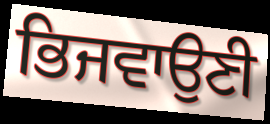
ਭਿਜਵਾਉਣੀ